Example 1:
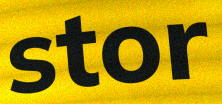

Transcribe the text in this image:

stor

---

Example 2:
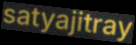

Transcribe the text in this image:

satyajitray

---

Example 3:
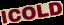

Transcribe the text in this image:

ICOLD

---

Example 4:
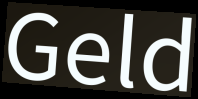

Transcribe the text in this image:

Geld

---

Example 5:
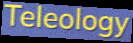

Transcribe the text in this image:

Teleology